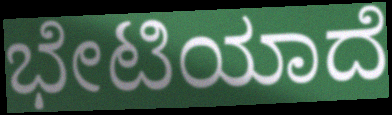
ಭೇಟಿಯಾದೆ